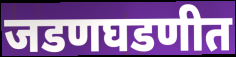
जडणघडणीत